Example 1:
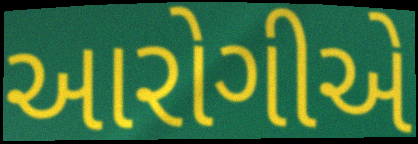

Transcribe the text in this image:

આરોગીએ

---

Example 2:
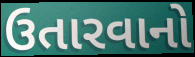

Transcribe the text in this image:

ઉતારવાનો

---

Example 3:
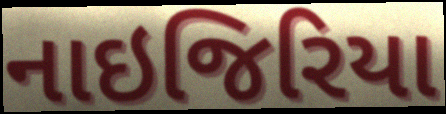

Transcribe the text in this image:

નાઇજિરિયા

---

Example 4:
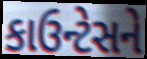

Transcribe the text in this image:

કાઉન્ટેસને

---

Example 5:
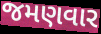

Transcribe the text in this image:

જમણવાર